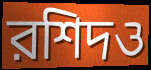
রশিদও